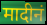
मादीनं